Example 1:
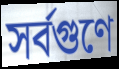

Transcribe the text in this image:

সর্বগুণে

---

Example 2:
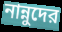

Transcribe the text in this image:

নান্নুদের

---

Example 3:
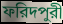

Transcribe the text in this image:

ফরিদপুরী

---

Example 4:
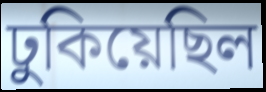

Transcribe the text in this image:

ঢুকিয়েছিল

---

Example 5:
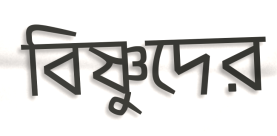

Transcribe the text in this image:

বিষ্ণুদের